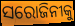
ସରୋଜିନୀକୁ